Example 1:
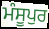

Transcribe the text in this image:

ਮੰਸੂਪੁਰ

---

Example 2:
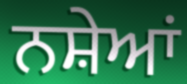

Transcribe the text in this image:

ਨਸ਼ੇਆਂ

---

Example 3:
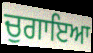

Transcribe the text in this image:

ਚੁਗਾਇਆ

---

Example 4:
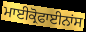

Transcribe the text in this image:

ਮਾਈਕ੍ਰੋਫਾਈਨਾਂਸ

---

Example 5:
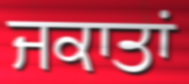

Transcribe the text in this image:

ਜਕਾਤਾਂ